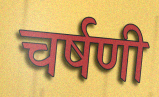
चर्षणी